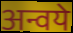
अन्‍वये